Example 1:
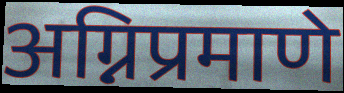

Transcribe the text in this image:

अग्निप्रमाणे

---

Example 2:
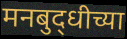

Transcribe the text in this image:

मनबुद्धीच्या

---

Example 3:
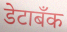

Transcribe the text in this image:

डेटाबँक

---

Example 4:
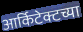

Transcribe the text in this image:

आर्किटेक्टच्या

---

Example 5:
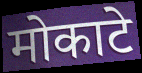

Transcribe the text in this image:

मोकाटे